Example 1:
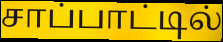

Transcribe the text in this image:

சாப்பாட்டில்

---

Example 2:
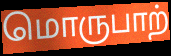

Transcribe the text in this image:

மொருபாற்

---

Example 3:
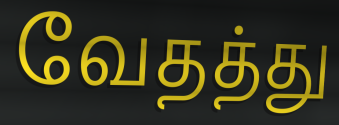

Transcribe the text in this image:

வேதத்து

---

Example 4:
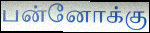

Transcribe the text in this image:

பன்னோக்கு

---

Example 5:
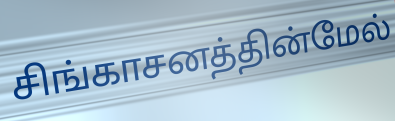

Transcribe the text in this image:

சிங்காசனத்தின்மேல்